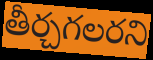
తీర్చగలరని